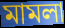
মামলা